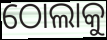
ଠୋଲାକୁ